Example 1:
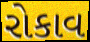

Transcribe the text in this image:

રોકાવ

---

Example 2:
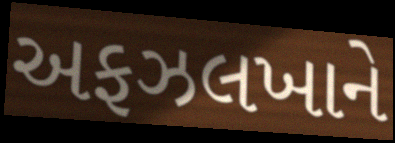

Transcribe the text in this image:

અફઝલખાને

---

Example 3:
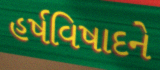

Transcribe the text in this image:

હર્ષવિષાદને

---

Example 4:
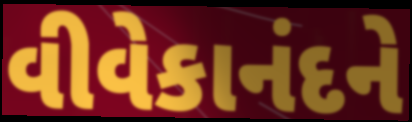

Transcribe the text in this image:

વીવેકાનંદને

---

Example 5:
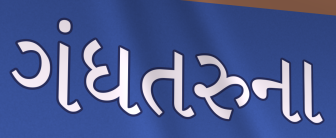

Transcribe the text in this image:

ગંધતરુના